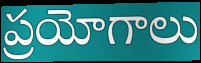
ప్రయోగాలు